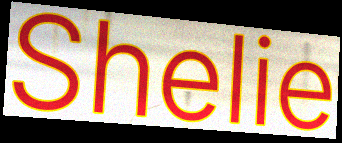
Shelie